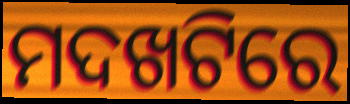
ମଦଖଟିରେ